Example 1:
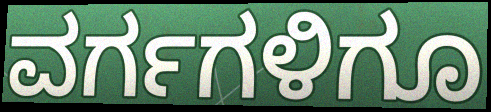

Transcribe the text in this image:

ವರ್ಗಗಳಿಗೂ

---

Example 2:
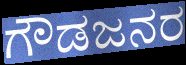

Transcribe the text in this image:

ಗೌಡಜನರ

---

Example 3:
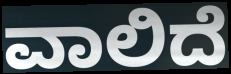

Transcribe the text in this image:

ವಾಲಿದೆ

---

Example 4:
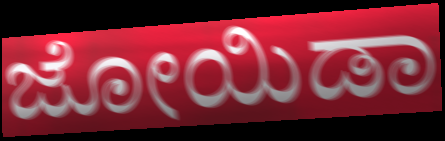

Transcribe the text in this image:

ಜೋಯಿಡಾ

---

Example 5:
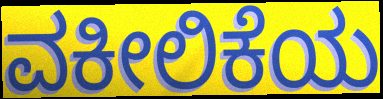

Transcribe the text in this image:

ವಕೀಲಿಕೆಯ